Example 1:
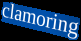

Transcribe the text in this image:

clamoring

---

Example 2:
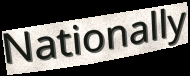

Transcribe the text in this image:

Nationally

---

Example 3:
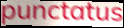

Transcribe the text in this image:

punctatus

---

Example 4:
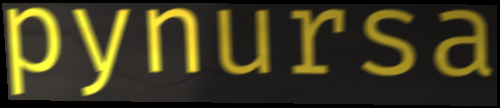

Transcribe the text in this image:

pynursa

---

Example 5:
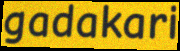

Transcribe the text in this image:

gadakari